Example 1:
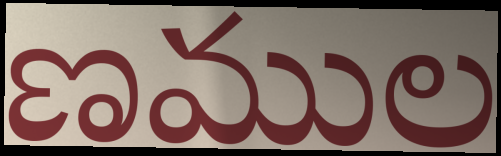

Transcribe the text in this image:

ణముల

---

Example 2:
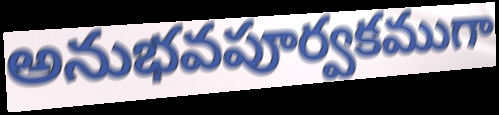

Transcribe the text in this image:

అనుభవపూర్వకముగా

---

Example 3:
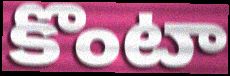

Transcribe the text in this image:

కొంటా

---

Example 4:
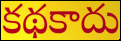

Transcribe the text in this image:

కథకాదు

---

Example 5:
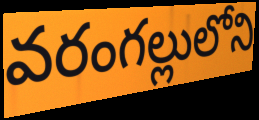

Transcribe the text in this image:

వరంగల్లులోని